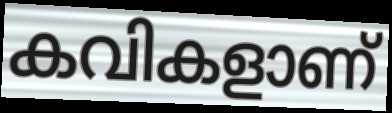
കവികളാണ്